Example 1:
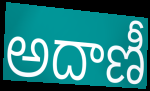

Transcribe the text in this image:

అదాణీ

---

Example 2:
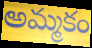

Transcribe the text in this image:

అమ్మకం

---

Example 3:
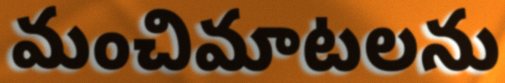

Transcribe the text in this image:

మంచిమాటలను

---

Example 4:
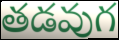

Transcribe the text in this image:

తడవుగ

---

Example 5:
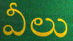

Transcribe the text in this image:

వీలు